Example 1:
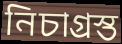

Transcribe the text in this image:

নিচাগ্ৰস্ত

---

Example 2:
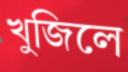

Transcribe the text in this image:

খুজিলে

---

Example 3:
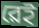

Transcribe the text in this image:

ৱেই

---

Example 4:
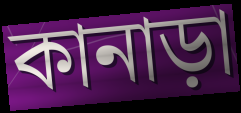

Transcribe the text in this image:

কানাড়া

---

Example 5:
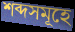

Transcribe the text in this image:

শব্দসমূহে